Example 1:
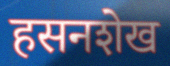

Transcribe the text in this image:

हसनशेख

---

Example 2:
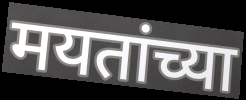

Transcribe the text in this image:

मयतांच्या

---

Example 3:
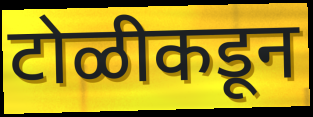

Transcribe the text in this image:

टोळीकडून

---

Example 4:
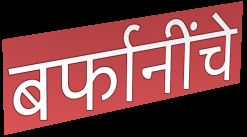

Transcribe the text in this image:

बर्फानींचे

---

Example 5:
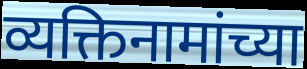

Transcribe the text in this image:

व्यक्तिनामांच्या